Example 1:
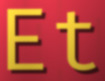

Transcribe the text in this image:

Et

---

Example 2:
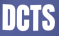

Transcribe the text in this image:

DCTS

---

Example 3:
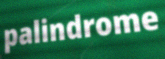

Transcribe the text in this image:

palindrome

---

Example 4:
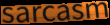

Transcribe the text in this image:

sarcasm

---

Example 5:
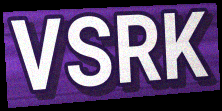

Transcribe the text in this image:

VSRK